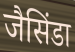
जैसिंडा